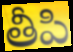
తీపి